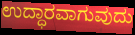
ಉದ್ಧಾರವಾಗುವುದು